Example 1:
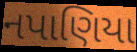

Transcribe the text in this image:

નપાણિયા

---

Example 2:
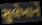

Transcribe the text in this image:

સુલેખાને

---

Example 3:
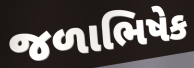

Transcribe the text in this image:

જળાભિષેક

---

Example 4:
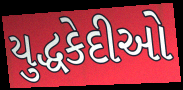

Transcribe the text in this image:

યુદ્ધકેદીઓ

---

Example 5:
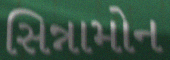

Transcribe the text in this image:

સિન્નામોન